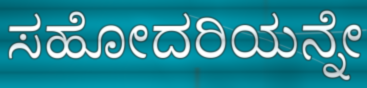
ಸಹೋದರಿಯನ್ನೇ